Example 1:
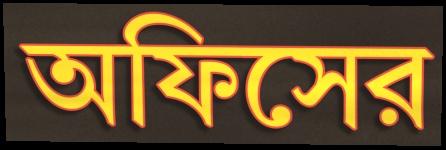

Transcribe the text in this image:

অফিসের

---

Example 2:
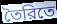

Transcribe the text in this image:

তৈরিতে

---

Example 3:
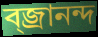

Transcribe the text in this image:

ব্জ্রানন্দ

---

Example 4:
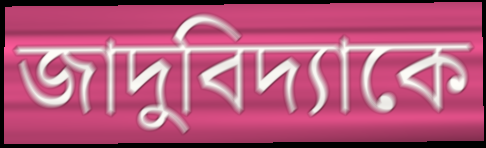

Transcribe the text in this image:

জাদুবিদ্যাকে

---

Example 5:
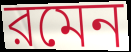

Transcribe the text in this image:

রমেন